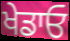
ਖੇਡਾਓ